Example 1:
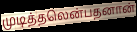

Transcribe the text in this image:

முடித்தலென்பதனான்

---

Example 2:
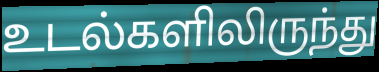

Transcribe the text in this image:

உடல்களிலிருந்து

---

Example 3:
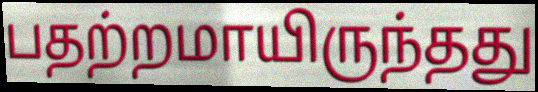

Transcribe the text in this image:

பதற்றமாயிருந்தது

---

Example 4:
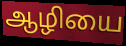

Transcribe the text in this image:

ஆழியை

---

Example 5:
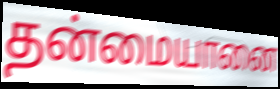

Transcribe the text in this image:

தன்மையானை